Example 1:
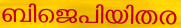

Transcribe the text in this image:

ബിജെപിയിതര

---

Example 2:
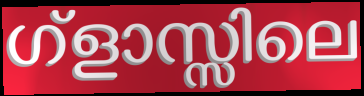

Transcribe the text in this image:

ഗ്ളാസ്സിലെ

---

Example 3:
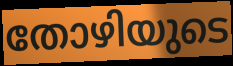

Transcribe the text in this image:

തോഴിയുടെ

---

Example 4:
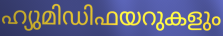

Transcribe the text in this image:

ഹ്യുമിഡിഫയറുകളും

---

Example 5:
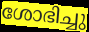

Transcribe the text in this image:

ശോഭിച്ചു